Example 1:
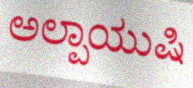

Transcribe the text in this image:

ಅಲ್ಪಾಯುಷಿ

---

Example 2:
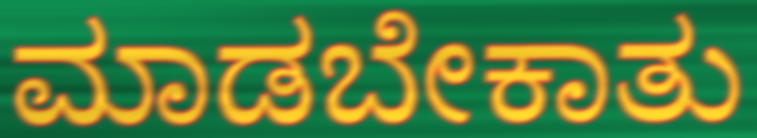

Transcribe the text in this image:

ಮಾಡಬೇಕಾತು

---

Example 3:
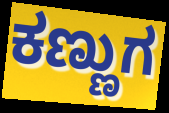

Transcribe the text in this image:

ಕಣ್ಣುಗ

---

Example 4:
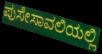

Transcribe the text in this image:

ಪುಸೇಸಾವಲಿಯಲ್ಲಿ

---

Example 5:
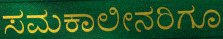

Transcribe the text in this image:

ಸಮಕಾಲೀನರಿಗೂ